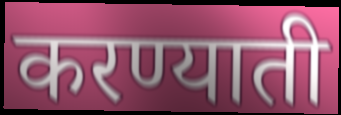
करण्याती